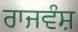
ਰਾਜਵੰਸ਼